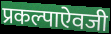
प्रकल्पाऐवजी